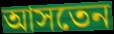
আসতেন